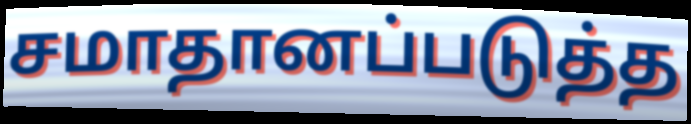
சமாதானப்படுத்த